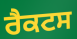
ਰੈਕਟਸ